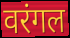
वरंगल